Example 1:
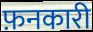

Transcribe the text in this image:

फ़नकारी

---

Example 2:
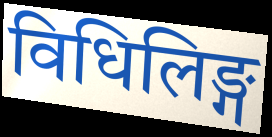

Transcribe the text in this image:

विधिलिङ्ग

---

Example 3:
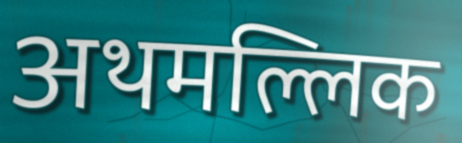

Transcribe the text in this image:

अथमल्लिक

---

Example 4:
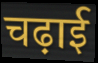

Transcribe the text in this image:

चढ़ाई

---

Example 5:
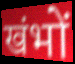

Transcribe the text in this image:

खंभों